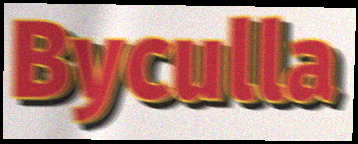
Byculla